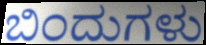
ಬಿಂದುಗಳು